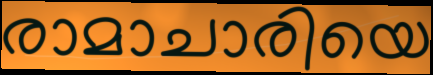
രാമാചാരിയെ